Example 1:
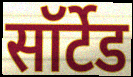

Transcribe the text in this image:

सॉर्टेड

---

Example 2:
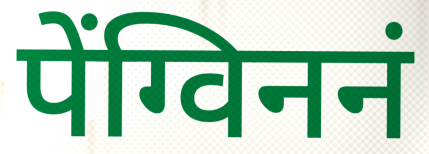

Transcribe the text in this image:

पेंग्विननं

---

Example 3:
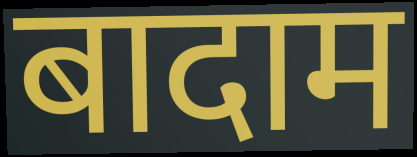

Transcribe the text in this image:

बादाम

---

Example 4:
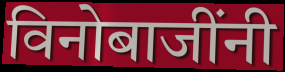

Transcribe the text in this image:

विनोबाजींनी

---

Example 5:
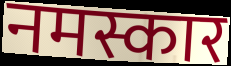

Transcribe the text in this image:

नमस्कार